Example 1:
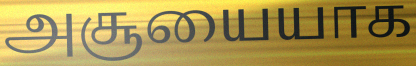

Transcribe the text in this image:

அசூயையாக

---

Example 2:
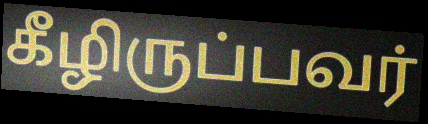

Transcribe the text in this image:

கீழிருப்பவர்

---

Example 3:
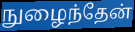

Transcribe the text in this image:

நுழைந்தேன்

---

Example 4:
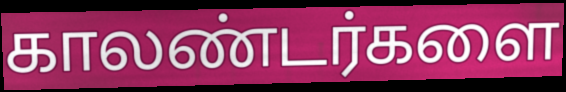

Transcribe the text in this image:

காலண்டர்களை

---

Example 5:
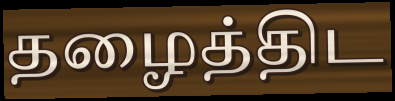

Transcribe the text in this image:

தழைத்திட